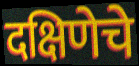
दक्षिणेचे